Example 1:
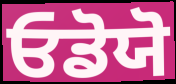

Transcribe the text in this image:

ਓਡੋਯੋ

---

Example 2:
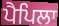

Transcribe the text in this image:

ਪੈਪਿਲਾ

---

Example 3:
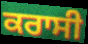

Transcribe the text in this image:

ਕਰਾਸੀ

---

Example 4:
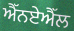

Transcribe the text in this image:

ਐੱਨਏਐੱਲ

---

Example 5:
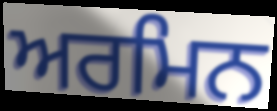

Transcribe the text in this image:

ਅਰਮਿਨ